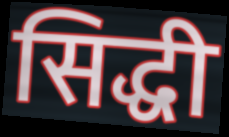
सिद्धी